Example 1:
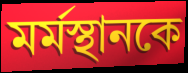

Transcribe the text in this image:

মর্মস্থানকে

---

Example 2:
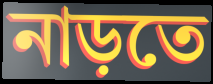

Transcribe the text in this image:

নাড়তে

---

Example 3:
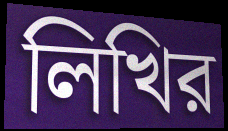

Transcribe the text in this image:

লিখির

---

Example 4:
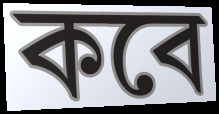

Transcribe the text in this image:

কবে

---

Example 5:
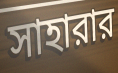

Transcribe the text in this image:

সাহারার